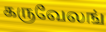
கருவேலங்